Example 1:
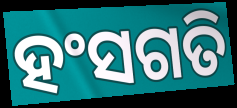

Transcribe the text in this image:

ହଂସଗତି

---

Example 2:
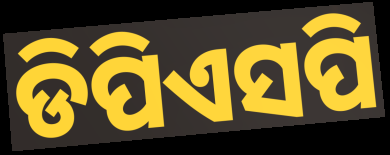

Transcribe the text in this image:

ଡିପିଏସପି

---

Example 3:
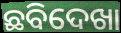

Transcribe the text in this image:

ଛବିଦେଖା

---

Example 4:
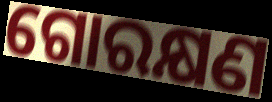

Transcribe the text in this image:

ଗୋରକ୍ଷଣ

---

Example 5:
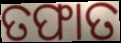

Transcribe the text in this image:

ତଫାତ